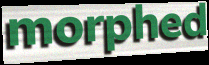
morphed